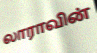
லாராவின்